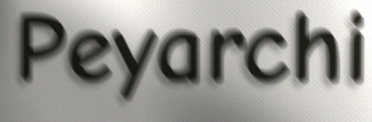
Peyarchi